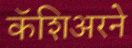
कॅशिअरने